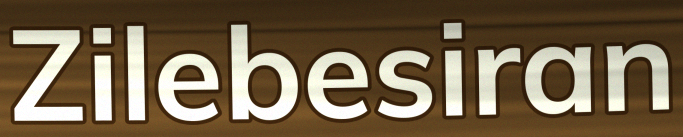
Zilebesiran